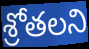
శ్రోతలని